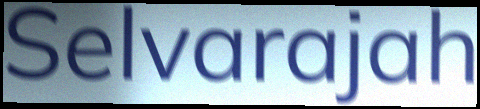
Selvarajah